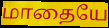
மாதையே